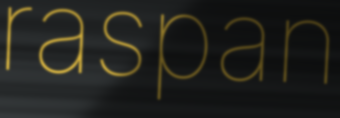
raspan